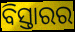
ବିସ୍ତାରର